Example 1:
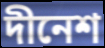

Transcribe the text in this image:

দীনেশ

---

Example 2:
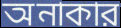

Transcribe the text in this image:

অনাকার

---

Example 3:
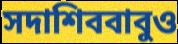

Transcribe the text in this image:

সদাশিববাবুও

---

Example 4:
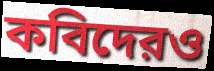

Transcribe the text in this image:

কবিদেরও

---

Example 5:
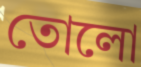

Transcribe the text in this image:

তোলো